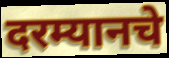
दरम्यानचे